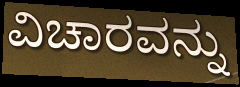
ವಿಚಾರವನ್ನು